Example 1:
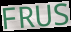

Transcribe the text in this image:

FRUS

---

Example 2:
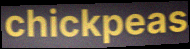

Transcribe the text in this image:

chickpeas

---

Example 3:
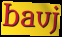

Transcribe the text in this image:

bauj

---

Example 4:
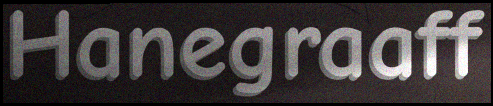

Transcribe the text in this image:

Hanegraaff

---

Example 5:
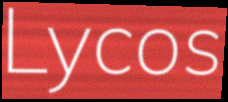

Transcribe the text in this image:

Lycos